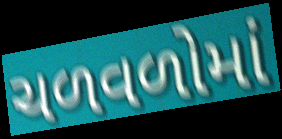
ચળવળોમાં